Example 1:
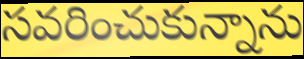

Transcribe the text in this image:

సవరించుకున్నాను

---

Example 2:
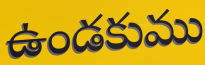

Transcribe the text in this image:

ఉండకుము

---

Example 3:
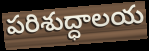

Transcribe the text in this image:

పరిశుద్ధాలయ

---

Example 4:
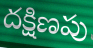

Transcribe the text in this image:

దక్షిణపు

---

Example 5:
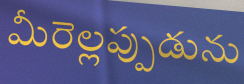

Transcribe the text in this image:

మీరెల్లప్పుడును